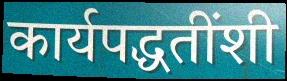
कार्यपद्धतींशी